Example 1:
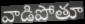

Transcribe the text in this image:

వాడిపోతూ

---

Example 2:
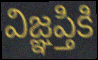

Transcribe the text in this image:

విజ్ఞప్తికి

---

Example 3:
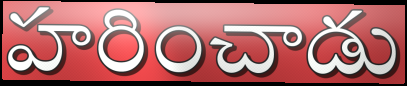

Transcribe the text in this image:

హరించాడు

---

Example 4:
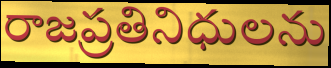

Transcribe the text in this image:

రాజప్రతినిధులను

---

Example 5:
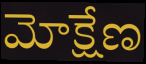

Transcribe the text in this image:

మోక్షేణ